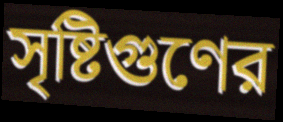
সৃষ্টিগুণের